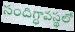
సందిగ్ధావస్థలో